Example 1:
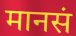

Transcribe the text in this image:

मानसं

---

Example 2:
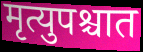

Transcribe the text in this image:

मृत्युपश्चात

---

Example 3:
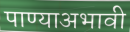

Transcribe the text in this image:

पाण्याअभावी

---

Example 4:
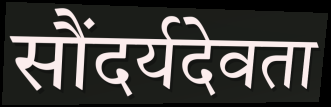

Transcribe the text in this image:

सौंदर्यदेवता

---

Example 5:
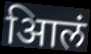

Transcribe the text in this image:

आिलं